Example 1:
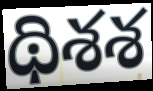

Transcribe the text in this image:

థిశశ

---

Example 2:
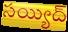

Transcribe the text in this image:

సయ్యిద్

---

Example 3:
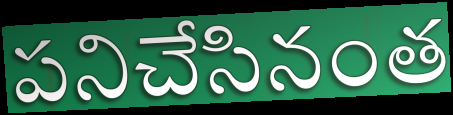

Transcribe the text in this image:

పనిచేసినంత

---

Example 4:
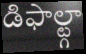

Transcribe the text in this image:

డిఫాల్ట్గా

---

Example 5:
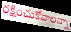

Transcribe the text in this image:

రక్షించుకోవాలన్నా